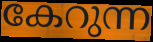
കേറുന്ന